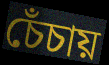
চেঁচায়